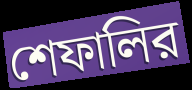
শেফালির